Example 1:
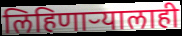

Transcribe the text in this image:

लिहिणाऱ्यालाही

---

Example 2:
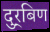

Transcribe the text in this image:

दुर्बिण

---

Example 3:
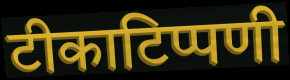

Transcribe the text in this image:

टीकाटिप्पणी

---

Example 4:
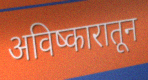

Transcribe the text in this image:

अविष्कारातून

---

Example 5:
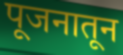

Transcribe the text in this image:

पूजनातून